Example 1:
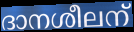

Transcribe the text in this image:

ദാനശീലന്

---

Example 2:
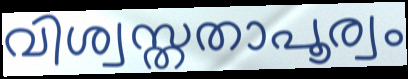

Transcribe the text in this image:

വിശ്വസ്തതാപൂര്വം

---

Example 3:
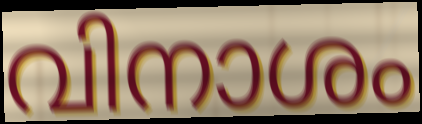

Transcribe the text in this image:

വിനാശം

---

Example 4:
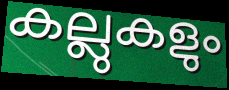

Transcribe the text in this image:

കല്ലുകളും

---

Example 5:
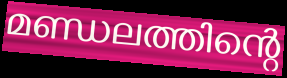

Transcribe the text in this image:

മണ്ഡലത്തിന്റെ